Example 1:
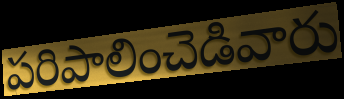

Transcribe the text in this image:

పరిపాలించెడివారు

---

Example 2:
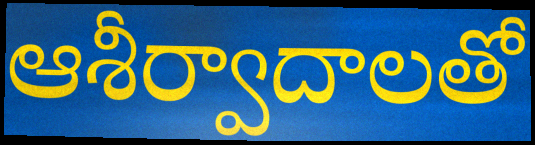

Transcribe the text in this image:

ఆశీర్వాదాలతో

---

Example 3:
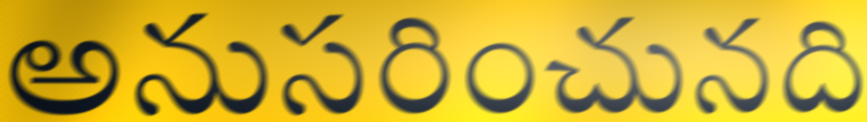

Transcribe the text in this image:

అనుసరించునది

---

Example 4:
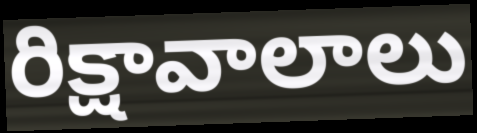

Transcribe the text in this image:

రిక్షావాలాలు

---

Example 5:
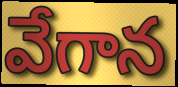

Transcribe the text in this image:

వేగాన